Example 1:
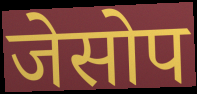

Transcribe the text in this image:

जेसोप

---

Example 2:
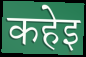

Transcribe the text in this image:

कहेइ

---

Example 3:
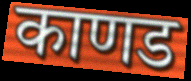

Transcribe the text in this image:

काणड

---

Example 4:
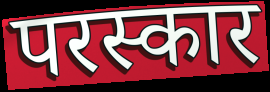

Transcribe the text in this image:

परस्कार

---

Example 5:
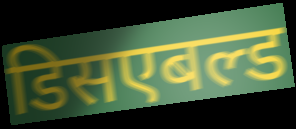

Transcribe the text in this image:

डिसएबल्ड